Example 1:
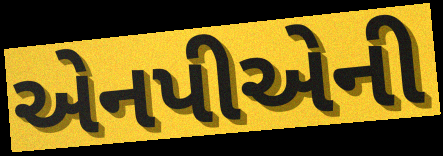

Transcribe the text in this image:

એનપીએની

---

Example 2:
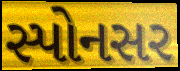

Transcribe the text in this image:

સ્પોનસર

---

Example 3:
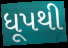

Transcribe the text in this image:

ધૂપથી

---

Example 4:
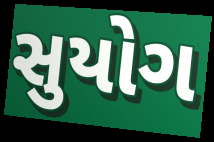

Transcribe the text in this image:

સુયોગ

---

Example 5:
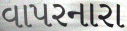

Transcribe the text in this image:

વાપરનારા